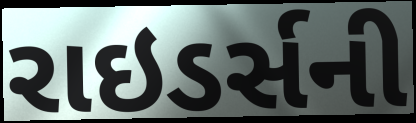
રાઇડર્સની